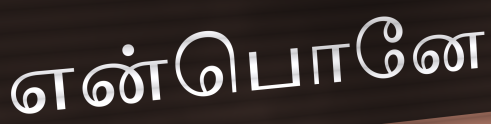
என்பொனே